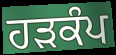
ਹੜਕੰਪ